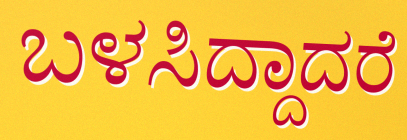
ಬಳಸಿದ್ದಾದರೆ